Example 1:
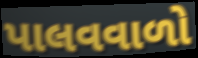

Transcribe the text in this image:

પાલવવાળો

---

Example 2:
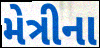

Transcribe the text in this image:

મેત્રીના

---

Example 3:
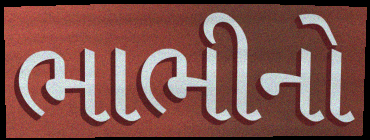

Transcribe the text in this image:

ભાભીનો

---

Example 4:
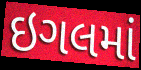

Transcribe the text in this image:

ઇગલમાં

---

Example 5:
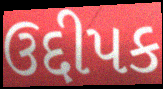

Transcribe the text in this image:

ઉદ્દીપક